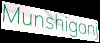
Munshiganj